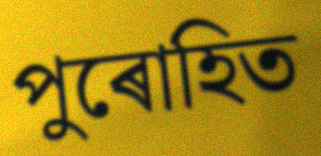
পুৰোহিত